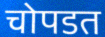
चोपडत